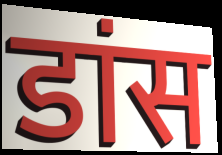
डांस